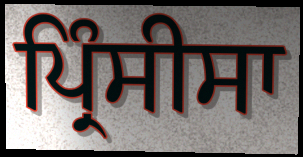
ਪ੍ਰਿੰਸੀਸਾ